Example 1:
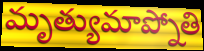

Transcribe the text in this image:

మృత్యుమాప్నోతి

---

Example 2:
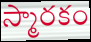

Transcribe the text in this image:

స్మారకం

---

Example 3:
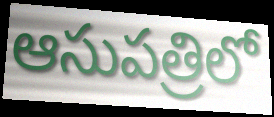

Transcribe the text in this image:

ఆసుపత్రిలో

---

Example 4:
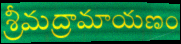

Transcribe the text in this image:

శ్రీమద్రామాయణం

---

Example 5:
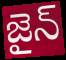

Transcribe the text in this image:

జైన్